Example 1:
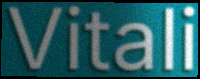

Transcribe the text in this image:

Vitali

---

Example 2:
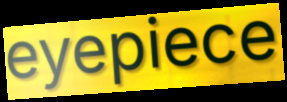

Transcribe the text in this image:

eyepiece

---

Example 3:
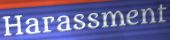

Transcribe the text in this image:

Harassment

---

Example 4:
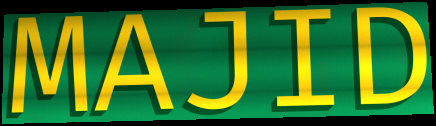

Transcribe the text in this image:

MAJID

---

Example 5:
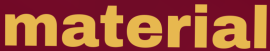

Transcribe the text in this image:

material